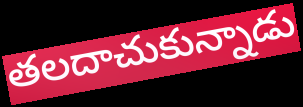
తలదాచుకున్నాడు